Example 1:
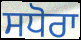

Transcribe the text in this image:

ਸਧੋਰਾ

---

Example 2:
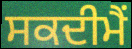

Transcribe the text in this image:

ਸਕਦੀਮੈਂ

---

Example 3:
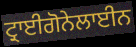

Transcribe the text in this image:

ਟ੍ਰਾਈਗੋਨੇਲਾਈਨ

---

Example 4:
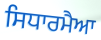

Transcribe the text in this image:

ਸਿਧਾਰਮੈਆ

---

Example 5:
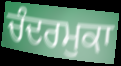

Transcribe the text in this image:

ਚੰਦਰਮੁਕਾ